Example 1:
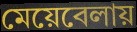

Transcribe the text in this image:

মেয়েবেলায়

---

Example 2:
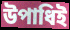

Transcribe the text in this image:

উপাধিই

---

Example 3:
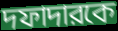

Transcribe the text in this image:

দফাদারকে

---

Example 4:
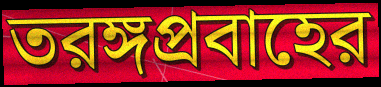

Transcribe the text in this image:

তরঙ্গপ্রবাহের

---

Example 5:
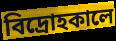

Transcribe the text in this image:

বিদ্রোহকালে